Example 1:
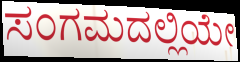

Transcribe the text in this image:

ಸಂಗಮದಲ್ಲಿಯೇ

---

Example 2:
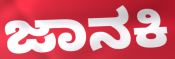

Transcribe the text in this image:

ಜಾನಕಿ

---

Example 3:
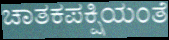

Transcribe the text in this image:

ಚಾತಕಪಕ್ಷಿಯಂತೆ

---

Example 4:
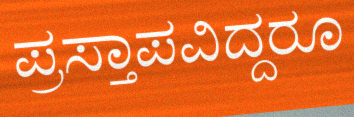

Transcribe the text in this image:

ಪ್ರಸ್ತಾಪವಿದ್ದರೂ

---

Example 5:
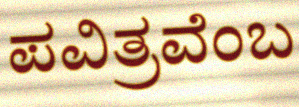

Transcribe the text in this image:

ಪವಿತ್ರವೆಂಬ